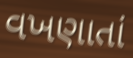
વખણાતાં